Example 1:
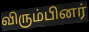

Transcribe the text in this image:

விரும்பினர்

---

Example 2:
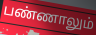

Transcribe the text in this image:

பண்ணாலும்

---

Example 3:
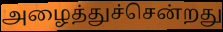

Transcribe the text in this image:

அழைத்துச்சென்றது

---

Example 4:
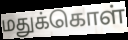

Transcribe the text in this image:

மதுக்கொள்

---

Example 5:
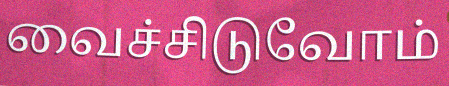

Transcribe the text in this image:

வைச்சிடுவோம்